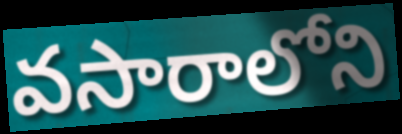
వసారాలోని